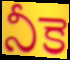
నీకె